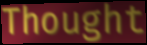
Thought